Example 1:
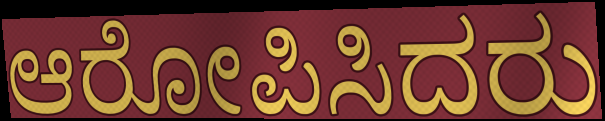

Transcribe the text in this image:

ಆರೋಪಿಸಿದರು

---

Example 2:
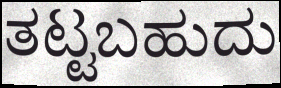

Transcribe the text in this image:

ತಟ್ಟಬಹುದು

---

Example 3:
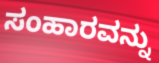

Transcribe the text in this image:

ಸಂಹಾರವನ್ನು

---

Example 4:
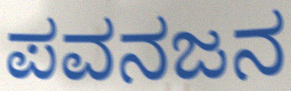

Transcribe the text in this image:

ಪವನಜನ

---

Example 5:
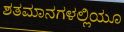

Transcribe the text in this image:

ಶತಮಾನಗಳಲ್ಲಿಯೂ